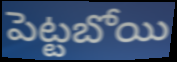
పెట్టబోయి